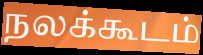
நலக்கூடம்